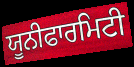
ਯੂਨੀਫਾਰਮਿਟੀ